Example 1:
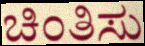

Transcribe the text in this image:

ಚಿಂತಿಸು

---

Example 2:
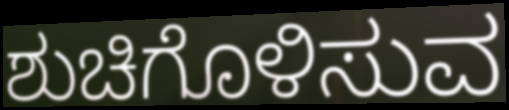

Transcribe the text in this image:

ಶುಚಿಗೊಳಿಸುವ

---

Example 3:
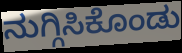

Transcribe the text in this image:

ನುಗ್ಗಿಸಿಕೊಂಡು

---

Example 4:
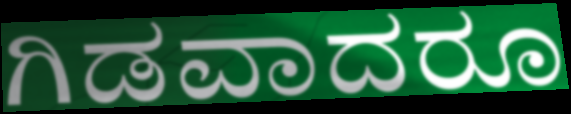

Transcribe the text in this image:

ಗಿಡವಾದರೂ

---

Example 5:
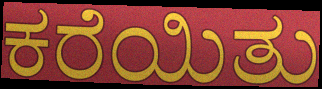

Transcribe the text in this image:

ಕರೆಯಿತು